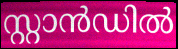
സ്റ്റാൻഡിൽ